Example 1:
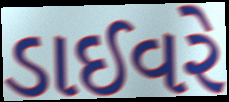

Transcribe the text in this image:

ડાઈવરે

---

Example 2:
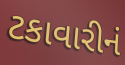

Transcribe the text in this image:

ટકાવારીનં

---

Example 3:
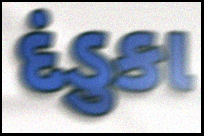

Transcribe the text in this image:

દંડુકા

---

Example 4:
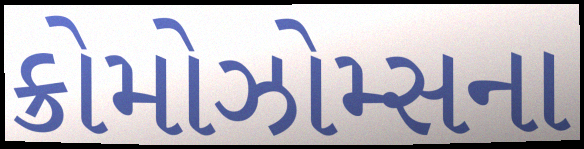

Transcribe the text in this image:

ક્રોમોઝોમ્સના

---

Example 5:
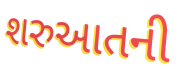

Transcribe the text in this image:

શરુઆતની